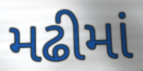
મઢીમાં